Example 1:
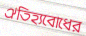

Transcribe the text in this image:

ঐতিহ্যবোধের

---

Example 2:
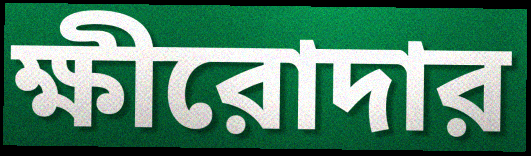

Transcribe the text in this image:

ক্ষীরোদার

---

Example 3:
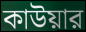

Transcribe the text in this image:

কাউয়ার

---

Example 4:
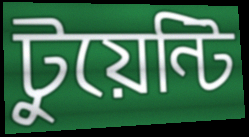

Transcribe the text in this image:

টুয়েন্টি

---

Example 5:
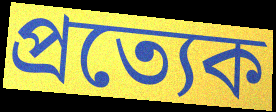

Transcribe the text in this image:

প্রত্যেক